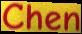
Chen